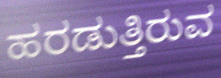
ಹರಡುತ್ತಿರುವ